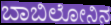
ಬಾಬಿಲೋನಿನ